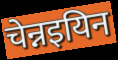
चेन्नइयिन